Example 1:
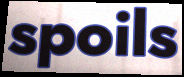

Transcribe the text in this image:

spoils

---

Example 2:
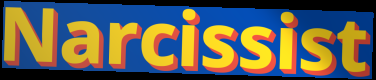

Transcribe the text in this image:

Narcissist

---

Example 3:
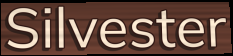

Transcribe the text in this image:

Silvester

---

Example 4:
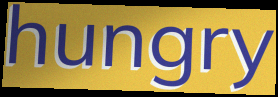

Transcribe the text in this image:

hungry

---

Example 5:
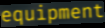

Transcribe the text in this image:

equipment